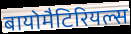
बायोमैटिरियल्स